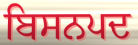
ਬਿਸਨਪਦ